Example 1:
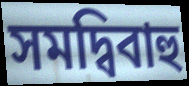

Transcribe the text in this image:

সমদ্বিবাহু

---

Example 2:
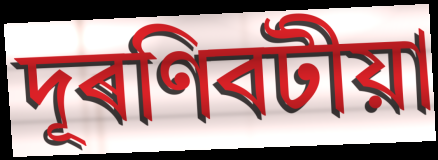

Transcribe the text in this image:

দূৰণিবটীয়া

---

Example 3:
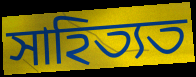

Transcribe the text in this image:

সাহিত্যত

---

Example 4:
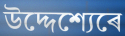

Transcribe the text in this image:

উদ্দেশ্যেৰে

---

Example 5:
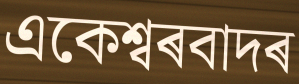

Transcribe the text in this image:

একেশ্বৰবাদৰ